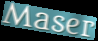
Maser